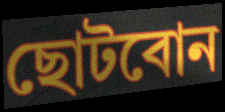
ছোটবোন